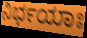
ನಿರ್ಭಯಾಃ